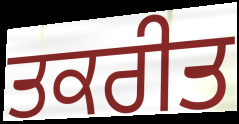
ਤਕਰੀਤ